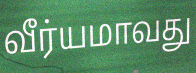
வீர்யமாவது